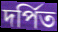
দর্পিত